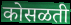
कोसळती